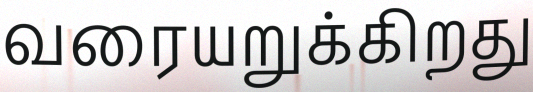
வரையறுக்கிறது